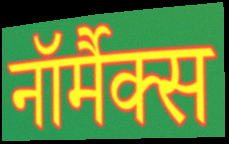
नॉर्मैक्स